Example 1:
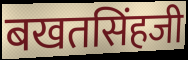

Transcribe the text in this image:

बखतसिंहजी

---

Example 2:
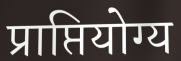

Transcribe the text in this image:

प्राप्तियोग्य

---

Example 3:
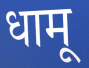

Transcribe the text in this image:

धामू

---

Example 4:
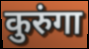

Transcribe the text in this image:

कुरुंगा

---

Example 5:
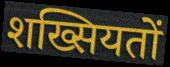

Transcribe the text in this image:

शख्सियतों